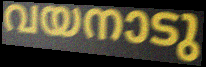
വയനാടു